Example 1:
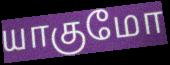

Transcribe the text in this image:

யாகுமோ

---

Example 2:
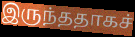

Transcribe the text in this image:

இருந்ததாகச்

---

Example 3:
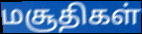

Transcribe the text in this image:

மசூதிகள்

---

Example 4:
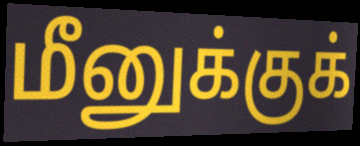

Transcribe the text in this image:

மீனுக்குக்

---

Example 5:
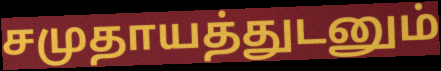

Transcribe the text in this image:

சமுதாயத்துடனும்